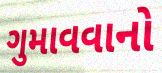
ગુમાવવાનો